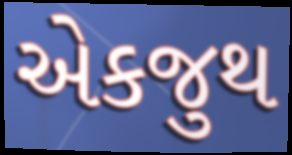
એકજુથ